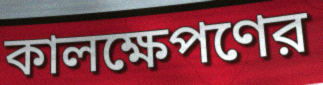
কালক্ষেপণের